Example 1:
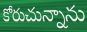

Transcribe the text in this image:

కోరుచున్నాను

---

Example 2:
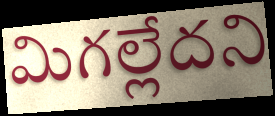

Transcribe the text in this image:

మిగల్లేదని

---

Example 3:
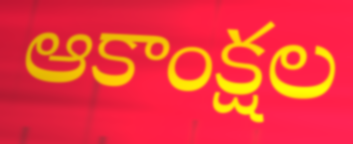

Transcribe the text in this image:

ఆకాంక్షల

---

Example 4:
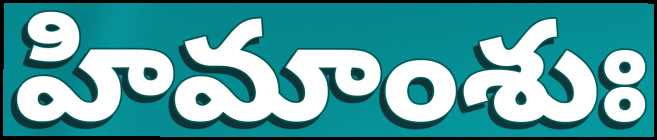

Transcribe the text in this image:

హిమాంశుః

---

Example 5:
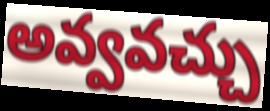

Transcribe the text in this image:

అవ్వవచ్చు